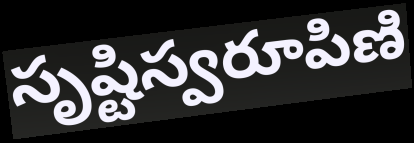
సృష్టిస్వరూపిణి